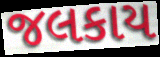
જલકાય